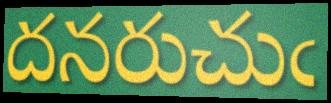
దనరుచుఁ